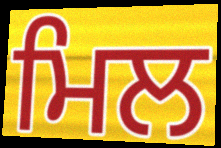
ਮਿਲ